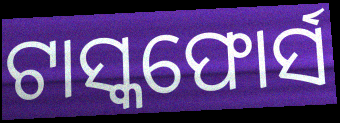
ଟାସ୍କଫୋର୍ସ